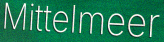
Mittelmeer